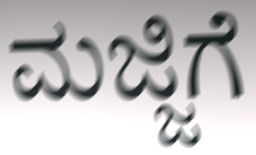
ಮಜ್ಜಿಗೆ